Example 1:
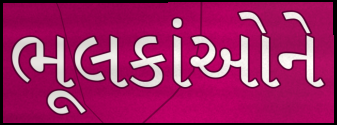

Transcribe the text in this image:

ભૂલકાંઓને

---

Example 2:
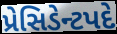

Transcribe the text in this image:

પ્રેસિડેન્ટપદે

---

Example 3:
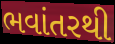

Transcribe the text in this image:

ભવાંતરથી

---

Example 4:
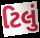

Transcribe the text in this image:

ટિલું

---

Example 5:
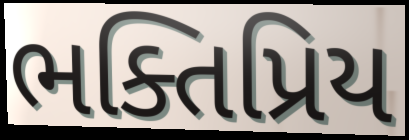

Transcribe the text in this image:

ભક્તિપ્રિય